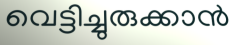
വെട്ടിച്ചുരുക്കാൻ